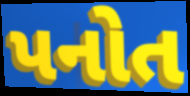
પનોત